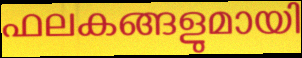
ഫലകങ്ങളുമായി